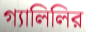
গ্যালিলির